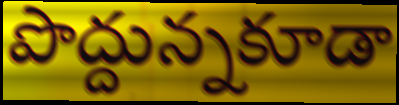
పొద్దున్నకూడా